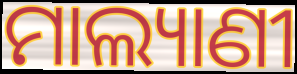
ମାଲ୍ୟାଣୀ